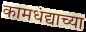
कामधंद्याच्या